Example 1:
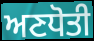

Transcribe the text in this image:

ਅਣਧੋਤੀ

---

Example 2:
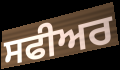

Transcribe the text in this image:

ਸਫੀਅਰ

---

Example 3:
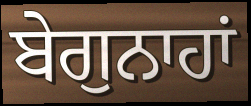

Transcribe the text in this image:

ਬੇਗੁਨਾਹਾਂ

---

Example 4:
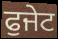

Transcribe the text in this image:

ਫੁਜੇਟ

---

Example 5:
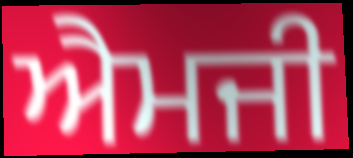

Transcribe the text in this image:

ਐਮਜੀ